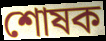
শোষক